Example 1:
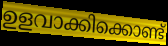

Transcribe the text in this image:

ഉളവാക്കിക്കൊണ്ട്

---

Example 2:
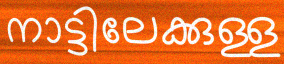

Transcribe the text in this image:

നാട്ടിലേക്കുള്ള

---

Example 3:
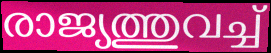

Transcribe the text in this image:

രാജ്യത്തുവച്ച്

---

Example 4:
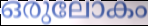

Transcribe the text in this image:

ഒരുലോകം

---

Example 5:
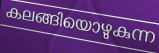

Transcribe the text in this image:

കലങ്ങിയൊഴുകുന്ന